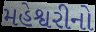
મહેશ્વરીનો